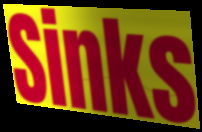
Sinks